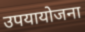
उपयायोजना